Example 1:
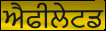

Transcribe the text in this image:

ਐਫੀਲੇਟਡ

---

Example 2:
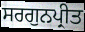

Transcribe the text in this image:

ਸਰਗੁਨਪ੍ਰੀਤ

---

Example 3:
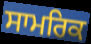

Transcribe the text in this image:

ਸਾਮਰਿਕ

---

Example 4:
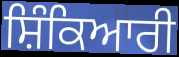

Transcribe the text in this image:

ਸ਼ਿੰਕਿਆਰੀ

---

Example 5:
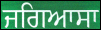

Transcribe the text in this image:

ਜਗਿਆਸਾ